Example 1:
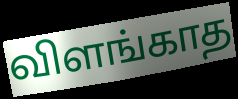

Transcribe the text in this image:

விளங்காத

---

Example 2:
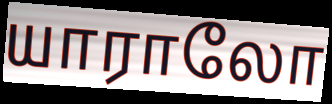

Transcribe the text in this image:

யாராலோ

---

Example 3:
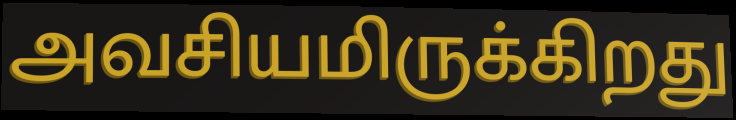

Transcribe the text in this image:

அவசியமிருக்கிறது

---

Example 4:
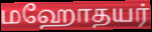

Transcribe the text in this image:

மஹோதயர்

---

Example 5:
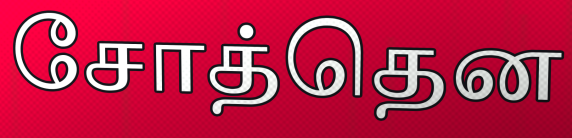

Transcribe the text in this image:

சோத்தென